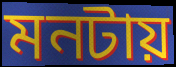
মনটায়